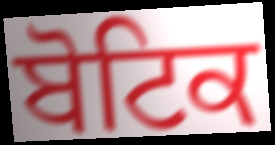
ਬੋਟਿਕ